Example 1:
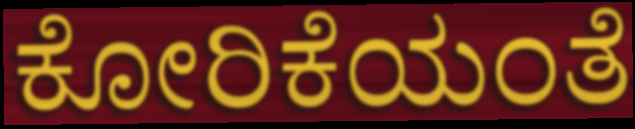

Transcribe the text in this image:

ಕೋರಿಕೆಯಂತೆ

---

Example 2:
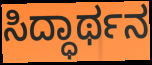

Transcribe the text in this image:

ಸಿದ್ಧಾರ್ಥನ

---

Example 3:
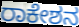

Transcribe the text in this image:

ರಾಕೇಶನ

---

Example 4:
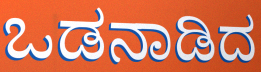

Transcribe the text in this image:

ಒಡನಾಡಿದ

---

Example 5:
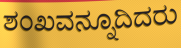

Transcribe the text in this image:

ಶಂಖವನ್ನೂದಿದರು